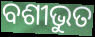
ବଶୀଭୁତ